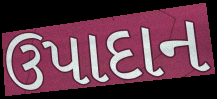
ઉપાદાન